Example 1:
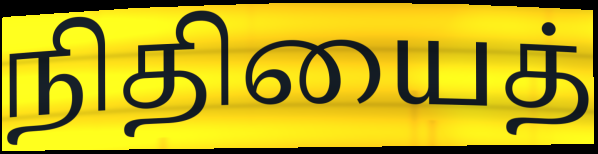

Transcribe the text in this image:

நிதியைத்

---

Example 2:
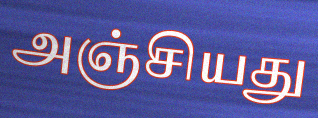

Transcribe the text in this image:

அஞ்சியது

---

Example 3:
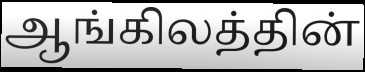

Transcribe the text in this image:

ஆங்கிலத்தின்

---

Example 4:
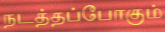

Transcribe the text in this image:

நடத்தப்போகும்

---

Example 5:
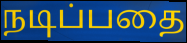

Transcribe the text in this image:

நடிப்பதை